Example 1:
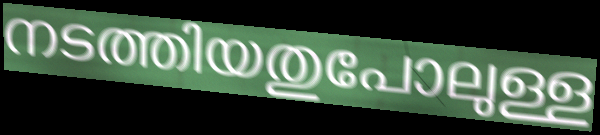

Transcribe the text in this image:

നടത്തിയതുപോലുള്ള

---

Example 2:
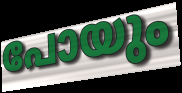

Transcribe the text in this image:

പോയും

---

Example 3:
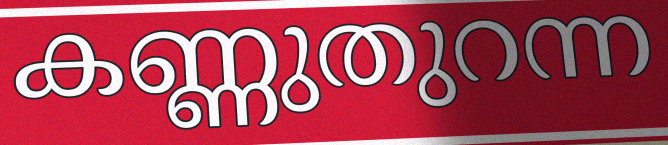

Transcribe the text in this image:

കണ്ണുതുറന്ന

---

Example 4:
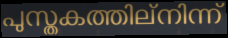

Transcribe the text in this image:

പുസ്തകത്തില്നിന്ന്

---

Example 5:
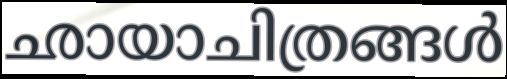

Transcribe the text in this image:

ഛായാചിത്രങ്ങൾ